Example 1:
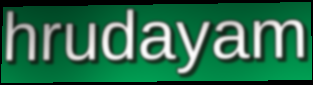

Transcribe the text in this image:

hrudayam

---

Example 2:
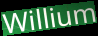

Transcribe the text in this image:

Willium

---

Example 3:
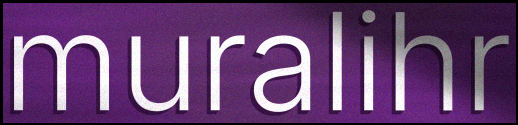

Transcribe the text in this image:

muralihr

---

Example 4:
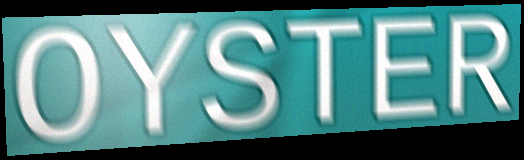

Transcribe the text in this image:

OYSTER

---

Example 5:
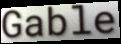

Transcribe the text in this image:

Gable